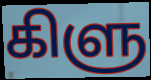
கிளு